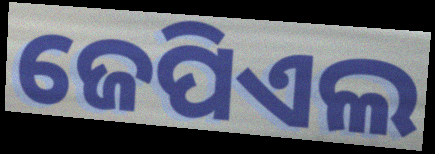
ଜେପିଏଲ